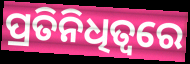
ପ୍ରତିନିଧିତ୍ବରେ